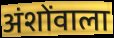
अंशोंवाला